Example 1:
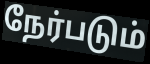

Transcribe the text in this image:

நேர்படும்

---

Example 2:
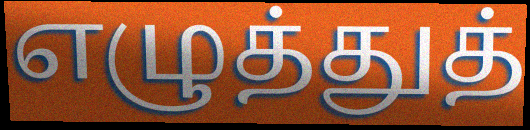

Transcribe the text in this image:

எழுத்துத்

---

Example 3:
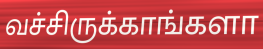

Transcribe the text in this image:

வச்சிருக்காங்களா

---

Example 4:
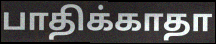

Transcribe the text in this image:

பாதிக்காதா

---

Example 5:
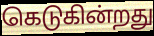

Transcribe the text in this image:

கெடுகின்றது